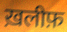
ख़लीफ़